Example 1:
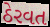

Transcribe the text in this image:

ઠેરવત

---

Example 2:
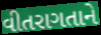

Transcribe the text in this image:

વીતરાગતાને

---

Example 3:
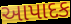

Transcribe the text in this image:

આપાદક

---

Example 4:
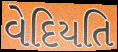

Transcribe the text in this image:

વેદિયતિ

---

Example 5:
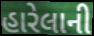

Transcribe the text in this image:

હારેલાની